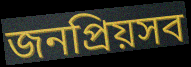
জনপ্রিয়সব